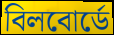
বিলবোর্ডে